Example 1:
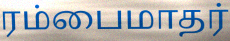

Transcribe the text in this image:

ரம்பைமாதர்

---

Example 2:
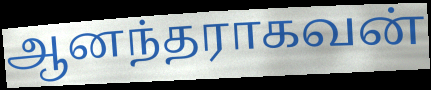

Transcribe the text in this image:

ஆனந்தராகவன்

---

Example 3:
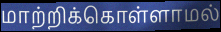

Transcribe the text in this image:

மாற்றிக்கொள்ளாமல்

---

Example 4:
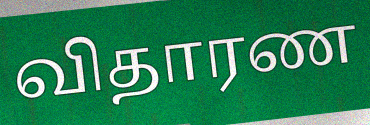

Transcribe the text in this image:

விதாரண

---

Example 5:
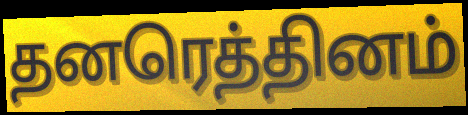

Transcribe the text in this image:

தனரெத்தினம்